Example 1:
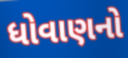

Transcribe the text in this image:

ધોવાણનો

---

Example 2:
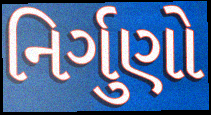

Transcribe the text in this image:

નિર્ગુણો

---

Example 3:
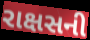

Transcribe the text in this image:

રાક્ષસની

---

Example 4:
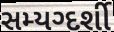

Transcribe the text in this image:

સમ્યગ્દર્શી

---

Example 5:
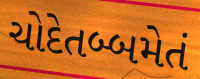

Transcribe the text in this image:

ચોદેતબ્બમેતં